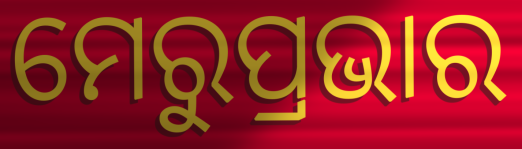
ମେରୁପ୍ରଭାର